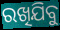
ରଖିଯିବୁ